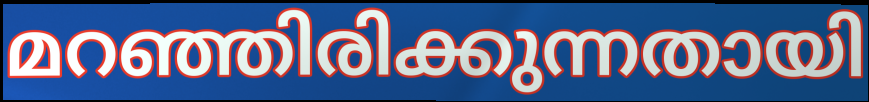
മറഞ്ഞിരിക്കുന്നതായി